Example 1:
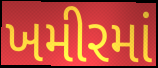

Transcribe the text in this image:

ખમીરમાં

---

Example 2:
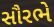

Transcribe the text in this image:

સૌરભે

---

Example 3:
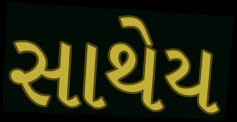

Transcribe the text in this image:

સાથેય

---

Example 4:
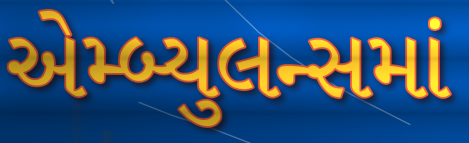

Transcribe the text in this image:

એમ્બ્યુલન્સમાં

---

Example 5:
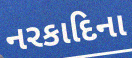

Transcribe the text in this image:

નરકાદિના